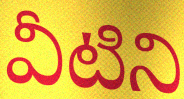
వీటిని